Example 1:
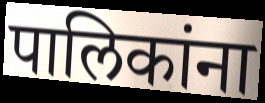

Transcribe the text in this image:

पालिकांना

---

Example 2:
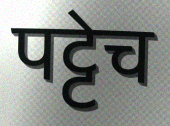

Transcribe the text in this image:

पट्टेच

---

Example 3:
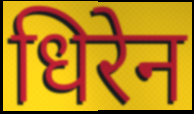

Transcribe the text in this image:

धिरेन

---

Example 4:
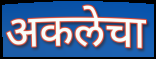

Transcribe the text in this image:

अकलेचा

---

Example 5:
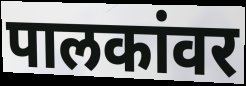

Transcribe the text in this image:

पालकांवर